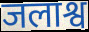
जलाश्व